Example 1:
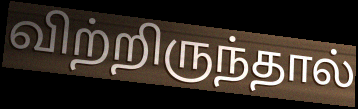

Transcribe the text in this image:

விற்றிருந்தால்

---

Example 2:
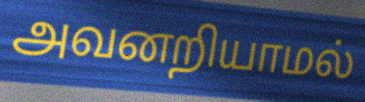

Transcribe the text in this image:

அவனறியாமல்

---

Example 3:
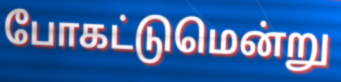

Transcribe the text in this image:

போகட்டுமென்று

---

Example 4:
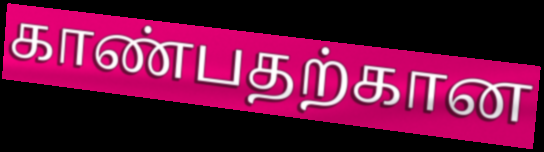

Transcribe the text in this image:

காண்பதற்கான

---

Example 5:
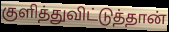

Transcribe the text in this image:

குளித்துவிட்டுத்தான்